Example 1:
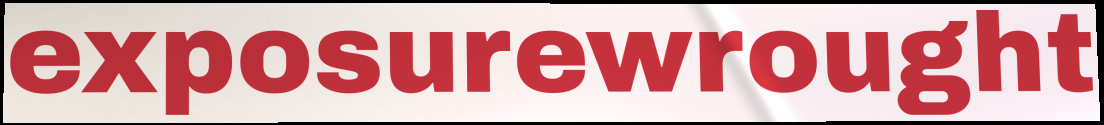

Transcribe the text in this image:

exposurewrought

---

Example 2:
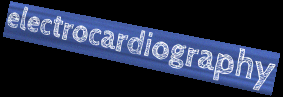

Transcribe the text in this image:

electrocardiography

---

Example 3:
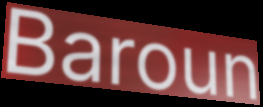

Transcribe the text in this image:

Baroun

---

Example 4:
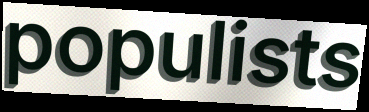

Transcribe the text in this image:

populists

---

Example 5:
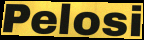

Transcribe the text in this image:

Pelosi